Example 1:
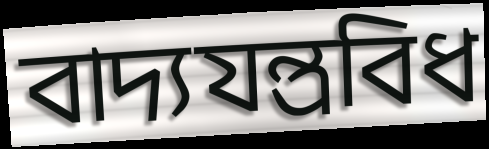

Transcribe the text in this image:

বাদ্যযন্ত্ৰবিধ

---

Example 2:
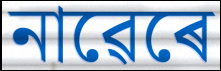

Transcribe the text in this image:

নাৱেৰে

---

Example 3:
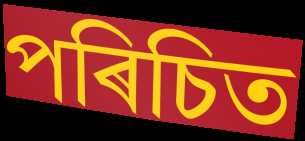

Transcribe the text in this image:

পৰিচিত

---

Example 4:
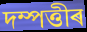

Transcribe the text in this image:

দম্পত্তীৰ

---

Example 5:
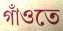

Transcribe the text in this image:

গাঁওতে